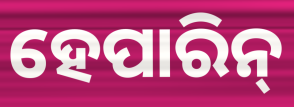
ହେପାରିନ୍